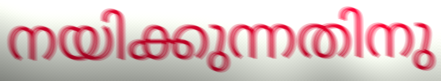
നയിക്കുന്നതിനു